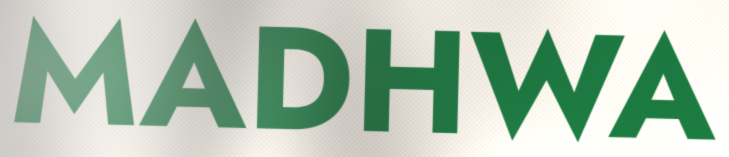
MADHWA